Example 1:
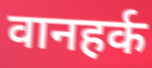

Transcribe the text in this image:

वानहर्क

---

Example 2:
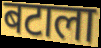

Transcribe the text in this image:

बटाला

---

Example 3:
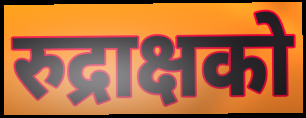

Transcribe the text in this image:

रुद्राक्षको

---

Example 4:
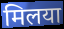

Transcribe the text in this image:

मिलया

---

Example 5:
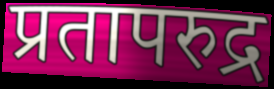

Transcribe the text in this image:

प्रतापरुद्र